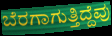
ಬೆರಗಾಗುತ್ತಿದ್ದೆವು